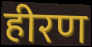
हीरण